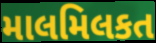
માલમિલકત